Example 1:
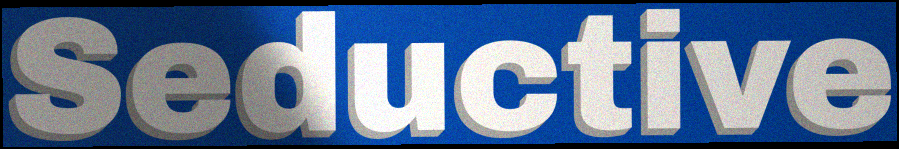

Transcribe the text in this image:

Seductive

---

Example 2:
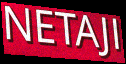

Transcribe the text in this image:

NETAJI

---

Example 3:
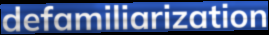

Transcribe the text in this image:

defamiliarization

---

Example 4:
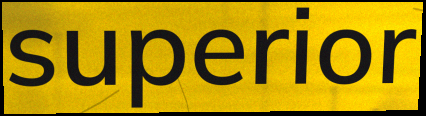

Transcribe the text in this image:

superior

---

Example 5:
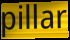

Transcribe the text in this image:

pillar